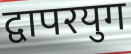
द्वापरयुग